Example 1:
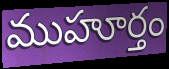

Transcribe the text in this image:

ముహూర్తం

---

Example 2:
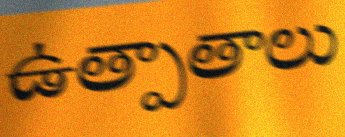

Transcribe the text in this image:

ఉత్పాతాలు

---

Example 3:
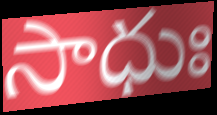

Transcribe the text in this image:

సాధుః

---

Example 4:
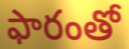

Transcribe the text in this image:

ఫారంతో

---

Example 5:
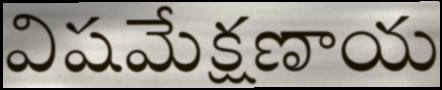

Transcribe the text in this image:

విషమేక్షణాయ